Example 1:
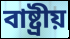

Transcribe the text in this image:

বাষ্ট্রীয়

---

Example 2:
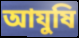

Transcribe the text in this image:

আযুষি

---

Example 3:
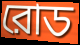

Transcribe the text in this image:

রোড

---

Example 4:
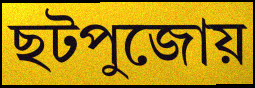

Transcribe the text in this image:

ছটপুজোয়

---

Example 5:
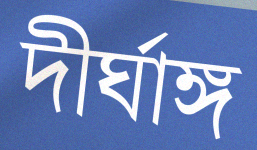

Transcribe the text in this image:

দীর্ঘাঙ্গ